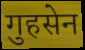
गुहसेन